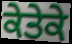
ਕੇਤੇਕੇ